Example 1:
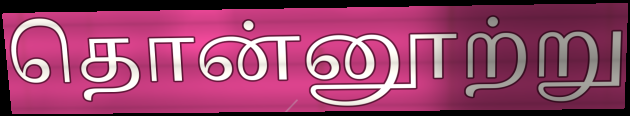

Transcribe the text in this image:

தொன்னூற்று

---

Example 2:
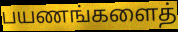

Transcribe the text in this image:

பயணங்களைத்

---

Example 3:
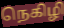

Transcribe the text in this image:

நெகிழி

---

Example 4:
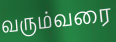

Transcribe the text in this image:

வரும்வரை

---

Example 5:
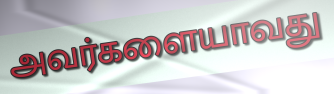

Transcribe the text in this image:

அவர்களையாவது